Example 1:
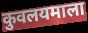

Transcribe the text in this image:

कुवलयमाला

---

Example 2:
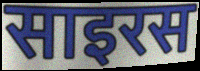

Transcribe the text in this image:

साइरस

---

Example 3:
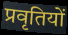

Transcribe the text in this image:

प्रवृतियों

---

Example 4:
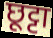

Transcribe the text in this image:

छूट्टा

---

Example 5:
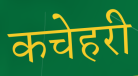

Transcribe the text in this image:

कचेहरी